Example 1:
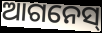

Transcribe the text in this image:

ଆଗନେସ୍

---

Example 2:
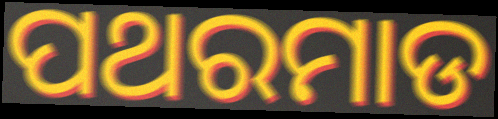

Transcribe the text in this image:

ପଥରମାଡ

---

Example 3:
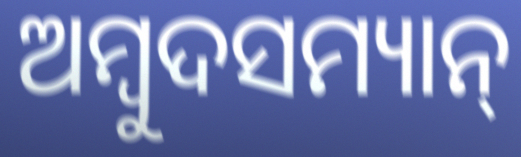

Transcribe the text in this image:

ଅମ୍ୱୁଦସମ୍ୟାନ୍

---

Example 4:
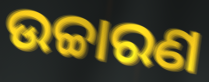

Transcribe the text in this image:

ଉଚ୍ଚାରଣ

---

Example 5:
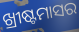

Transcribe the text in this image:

ଖ୍ରୀଷ୍ଟମାସର